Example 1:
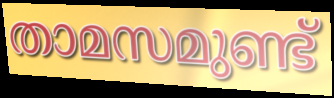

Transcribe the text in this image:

താമസമുണ്ട്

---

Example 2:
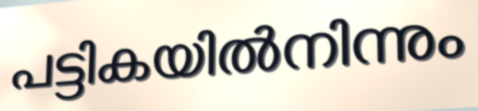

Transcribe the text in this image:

പട്ടികയിൽനിന്നും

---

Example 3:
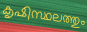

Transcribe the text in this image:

കൃഷിസ്ഥലത്തും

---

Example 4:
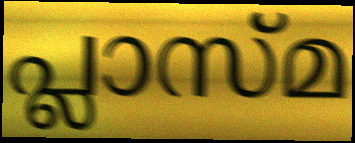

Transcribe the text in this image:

പ്ലാസ്മ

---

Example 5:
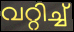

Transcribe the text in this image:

വറ്റിച്ച്